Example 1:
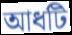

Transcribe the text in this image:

আধটি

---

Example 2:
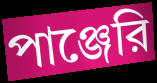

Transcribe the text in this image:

পাঞ্জেরি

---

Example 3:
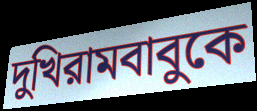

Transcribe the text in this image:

দুখিরামবাবুকে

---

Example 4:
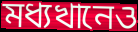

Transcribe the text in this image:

মধ্যখানেও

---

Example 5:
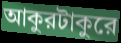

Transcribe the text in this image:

আকুরটাকুরে